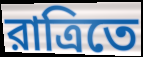
রাত্রিতে